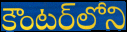
కౌంటర్‌లోని